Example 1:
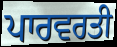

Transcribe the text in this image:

ਪਾਰਵਰਤੀ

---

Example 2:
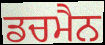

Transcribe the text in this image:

ਡਚਮੈਨ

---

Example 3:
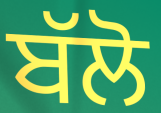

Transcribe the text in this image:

ਬੱਲੋ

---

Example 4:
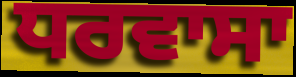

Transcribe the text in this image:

ਧਰਵਾਸਾ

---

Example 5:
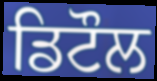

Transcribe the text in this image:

ਡਿਟੌਲ